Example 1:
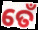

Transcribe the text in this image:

ତେଁ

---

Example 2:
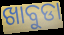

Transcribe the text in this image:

ଖାବୁଡା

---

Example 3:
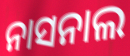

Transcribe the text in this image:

ନାସନାଲ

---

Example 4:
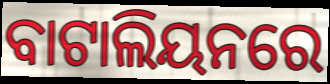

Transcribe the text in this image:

ବାଟାଲିୟନରେ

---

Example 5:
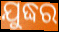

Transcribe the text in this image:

ଯୁଦ୍ଧର